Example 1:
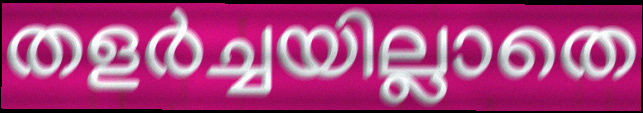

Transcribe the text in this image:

തളർച്ചയില്ലാതെ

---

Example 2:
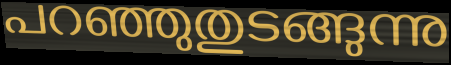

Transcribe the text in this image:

പറഞ്ഞുതുടങ്ങുന്നു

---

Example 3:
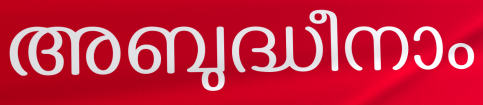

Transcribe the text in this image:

അബുദ്ധീനാം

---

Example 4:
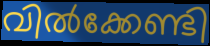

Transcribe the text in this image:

വിൽക്കേണ്ടി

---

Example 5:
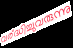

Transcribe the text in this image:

വര്ദ്ധിച്ചുവരുന്നു